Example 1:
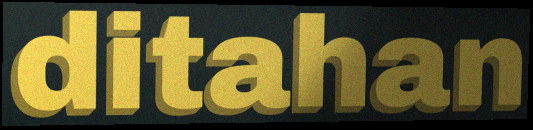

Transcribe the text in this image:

ditahan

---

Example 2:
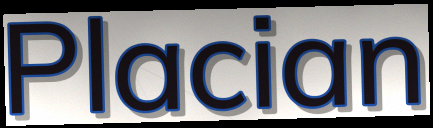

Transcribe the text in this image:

Placian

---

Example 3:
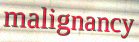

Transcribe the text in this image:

malignancy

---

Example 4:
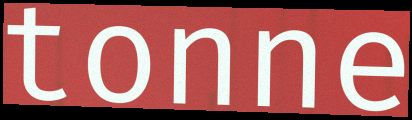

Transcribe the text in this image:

tonne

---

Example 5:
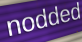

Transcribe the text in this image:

nodded